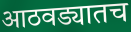
आठवड्यातच